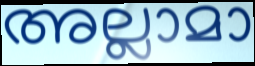
അല്ലാമാ